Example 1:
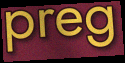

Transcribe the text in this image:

preg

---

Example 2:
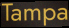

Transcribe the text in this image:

Tampa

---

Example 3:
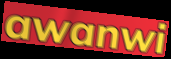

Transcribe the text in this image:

awanwi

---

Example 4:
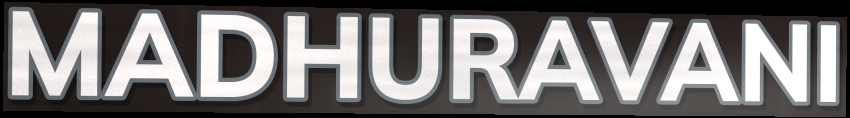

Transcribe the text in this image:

MADHURAVANI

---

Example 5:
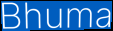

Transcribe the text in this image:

Bhuma